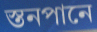
স্তনপানে